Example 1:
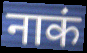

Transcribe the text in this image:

नाकं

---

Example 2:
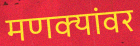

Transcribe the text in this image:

मणक्यांवर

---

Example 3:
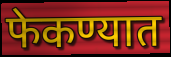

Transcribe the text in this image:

फेकण्यात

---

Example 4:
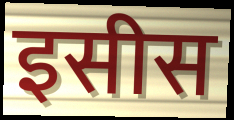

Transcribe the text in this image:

इसीस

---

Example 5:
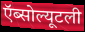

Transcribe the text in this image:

ऍब्सोल्यूटली